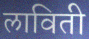
लाविती